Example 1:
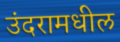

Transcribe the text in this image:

उंदरामधील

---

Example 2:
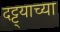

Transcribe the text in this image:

दट्ट्याच्या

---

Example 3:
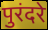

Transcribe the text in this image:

पुरंदरे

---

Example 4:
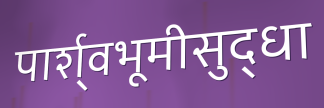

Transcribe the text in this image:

पार्श्वभूमीसुद्धा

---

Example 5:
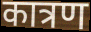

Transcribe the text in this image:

कात्रण